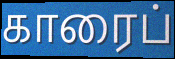
காரைப்